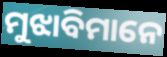
ମୁଝାବିମାନେ